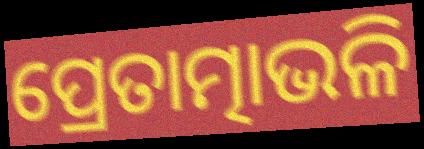
ପ୍ରେତାତ୍ମାଭଳି